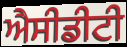
ਐਸੀਡੀਟੀ